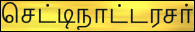
செட்டிநாட்டரசர்